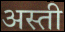
अस्ती